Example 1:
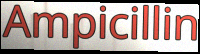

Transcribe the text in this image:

Ampicillin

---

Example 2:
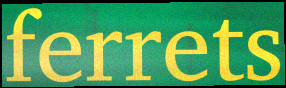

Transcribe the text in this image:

ferrets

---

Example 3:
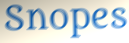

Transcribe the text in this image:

Snopes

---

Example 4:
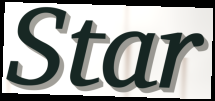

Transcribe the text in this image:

Star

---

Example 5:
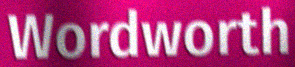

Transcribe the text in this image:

Wordworth